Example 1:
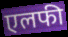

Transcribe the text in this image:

एलफी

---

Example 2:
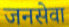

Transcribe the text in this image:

जनसेवा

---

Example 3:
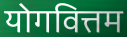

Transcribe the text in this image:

योगवित्तम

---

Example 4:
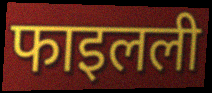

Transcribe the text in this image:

फाइलली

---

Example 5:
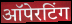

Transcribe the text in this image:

ऑपेरटिंग